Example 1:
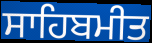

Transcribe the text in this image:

ਸਾਹਿਬਮੀਤ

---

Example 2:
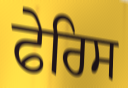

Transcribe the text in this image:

ਫੇਰਿਸ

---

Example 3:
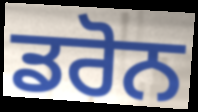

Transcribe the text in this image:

ਡਰੋਨ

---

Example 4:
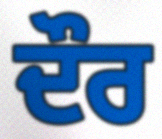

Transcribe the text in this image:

ਦੌਰ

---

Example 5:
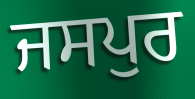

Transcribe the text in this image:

ਜਸਪੁਰ